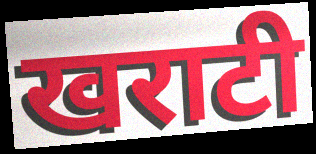
खराटी